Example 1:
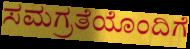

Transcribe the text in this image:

ಸಮಗ್ರತೆಯೊಂದಿಗೆ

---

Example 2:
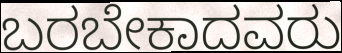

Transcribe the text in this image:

ಬರಬೇಕಾದವರು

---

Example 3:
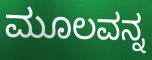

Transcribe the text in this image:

ಮೂಲವನ್ನ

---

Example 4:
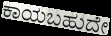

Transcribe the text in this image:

ಕಾಯಬಹುದೇ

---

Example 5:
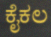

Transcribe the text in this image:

ಕೈಕಲ